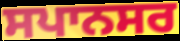
ਸਪਾਨਸਰ